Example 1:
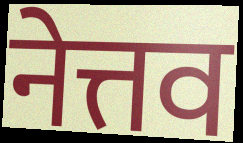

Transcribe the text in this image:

नेत्तव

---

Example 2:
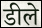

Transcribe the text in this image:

डीले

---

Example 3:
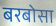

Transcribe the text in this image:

बरबोसा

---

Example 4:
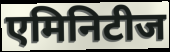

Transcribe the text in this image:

एमिनिटीज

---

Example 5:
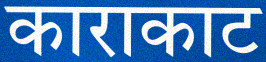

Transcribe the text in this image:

काराकाट